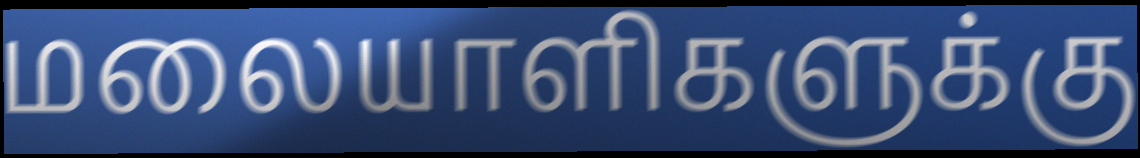
மலையாளிகளுக்கு